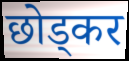
छोड्कर